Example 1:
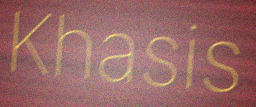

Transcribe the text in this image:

Khasis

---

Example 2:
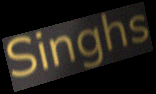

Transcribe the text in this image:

Singhs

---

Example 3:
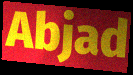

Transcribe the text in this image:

Abjad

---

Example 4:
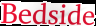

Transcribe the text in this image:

Bedside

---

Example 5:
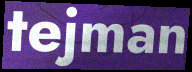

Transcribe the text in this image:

tejman